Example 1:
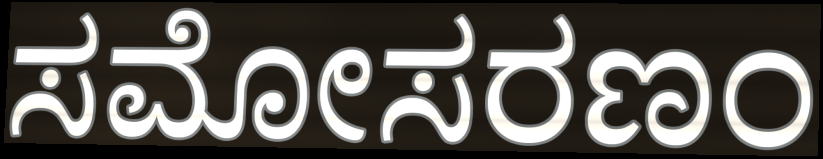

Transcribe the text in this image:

ಸಮೋಸರಣಂ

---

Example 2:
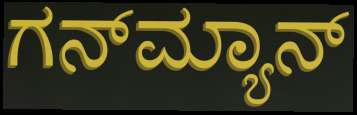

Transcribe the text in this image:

ಗನ್‌ಮ್ಯಾನ್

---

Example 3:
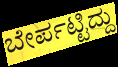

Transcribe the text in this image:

ಬೇರ್ಪಟ್ಟಿದ್ದು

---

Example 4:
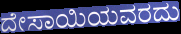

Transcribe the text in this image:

ದೇಸಾಯಿಯವರದು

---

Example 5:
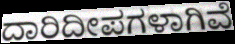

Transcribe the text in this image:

ದಾರಿದೀಪಗಳಾಗಿವೆ